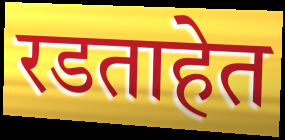
रडताहेत